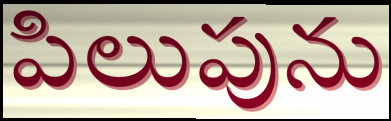
పిలుపును